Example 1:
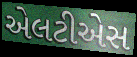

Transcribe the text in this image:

એલટીએસ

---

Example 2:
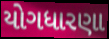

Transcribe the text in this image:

યોગધારણા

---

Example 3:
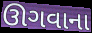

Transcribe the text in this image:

ઊગવાના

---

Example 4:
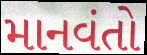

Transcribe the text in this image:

માનવંતો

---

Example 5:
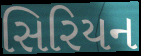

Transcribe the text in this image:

સિરિયન